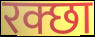
रक्छा